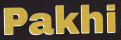
Pakhi